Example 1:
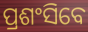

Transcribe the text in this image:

ପ୍ରଶଂସିବେ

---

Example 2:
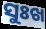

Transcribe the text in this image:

ସୁଃଖ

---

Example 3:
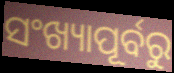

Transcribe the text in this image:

ସଂଖ୍ୟାପୂର୍ବରୁ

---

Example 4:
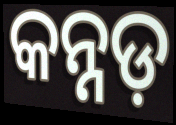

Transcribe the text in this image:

କନ୍ନଡ଼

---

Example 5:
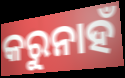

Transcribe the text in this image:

କରୁନାହଁ